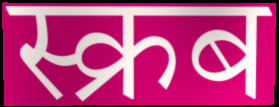
स्क्रब